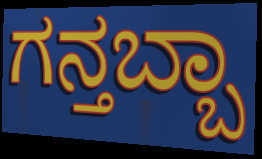
ಗನ್ತಬ್ಬಾ